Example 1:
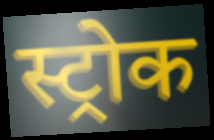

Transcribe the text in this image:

स्ट्रोक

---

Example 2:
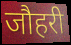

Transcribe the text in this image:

जौहरी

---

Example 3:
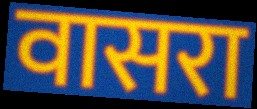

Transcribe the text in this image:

वासरा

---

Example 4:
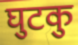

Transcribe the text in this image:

घुटकु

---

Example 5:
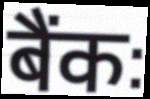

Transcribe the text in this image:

बैंकः